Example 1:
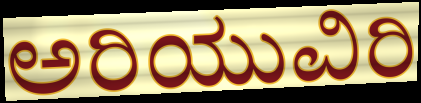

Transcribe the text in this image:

ಅರಿಯುವಿರಿ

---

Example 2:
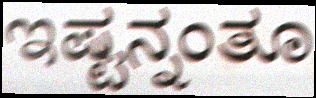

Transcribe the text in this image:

ಇಷ್ಟನ್ನಂತೂ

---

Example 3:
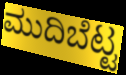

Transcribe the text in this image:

ಮುದಿಬೆಟ್ಟ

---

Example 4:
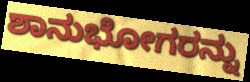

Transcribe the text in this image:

ಶಾನುಭೋಗರನ್ನು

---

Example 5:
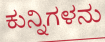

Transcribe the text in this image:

ಕುನ್ನಿಗಳನು